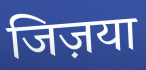
जिज़या